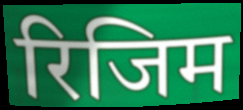
रिजिम